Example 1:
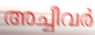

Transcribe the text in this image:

അച്ചീവർ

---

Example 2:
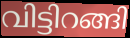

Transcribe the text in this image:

വിട്ടിറങ്ങി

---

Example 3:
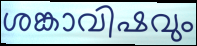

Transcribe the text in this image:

ശങ്കാവിഷവും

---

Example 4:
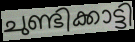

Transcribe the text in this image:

ചുണ്ടിക്കാട്ടി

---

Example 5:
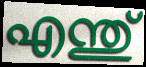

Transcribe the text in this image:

എന്തു്